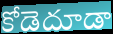
కోడెదూడా